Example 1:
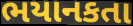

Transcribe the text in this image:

ભયાનકતા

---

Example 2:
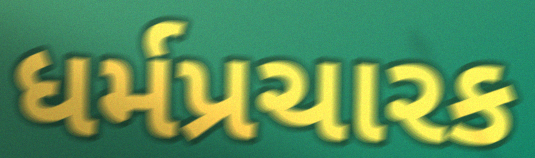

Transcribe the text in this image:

ધર્મપ્રચારક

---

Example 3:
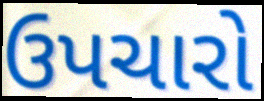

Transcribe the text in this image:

ઉપચારો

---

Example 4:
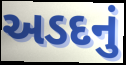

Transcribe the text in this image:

અડદનું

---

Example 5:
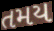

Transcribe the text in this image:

તમય